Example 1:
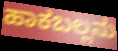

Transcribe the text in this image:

ಹಾಕಬಲ್ಲನು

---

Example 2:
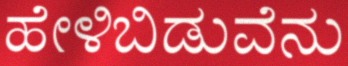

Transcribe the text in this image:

ಹೇಳಿಬಿಡುವೆನು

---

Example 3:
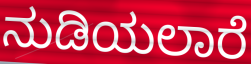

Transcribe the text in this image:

ನುಡಿಯಲಾರೆ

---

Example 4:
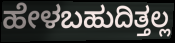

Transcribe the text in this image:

ಹೇಳಬಹುದಿತ್ತಲ್ಲ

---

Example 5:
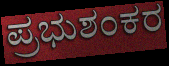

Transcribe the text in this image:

ಪ್ರಭುಶಂಕರ